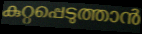
കുറ്റപ്പെടുത്താൻ